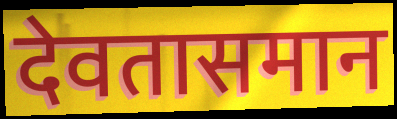
देवतासमान